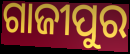
ଗାଜୀପୁର